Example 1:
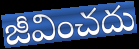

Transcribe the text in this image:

జీవించదు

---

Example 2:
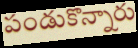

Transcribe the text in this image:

పండుకొన్నారు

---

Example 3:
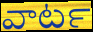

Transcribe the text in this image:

వాటర్‍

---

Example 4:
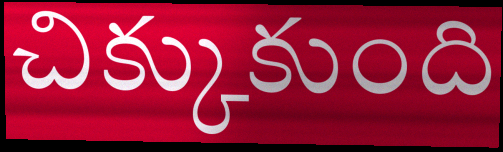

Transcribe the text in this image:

చిక్కుకుంది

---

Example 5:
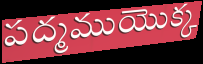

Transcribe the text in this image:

పద్మముయొక్క